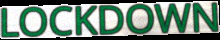
LOCKDOWN